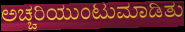
ಅಚ್ಚರಿಯುಂಟುಮಾಡಿತು